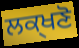
ਲਕ੍ਖਣੋ